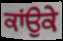
ਕਾਂਉਕੇ